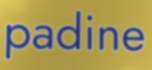
padine